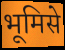
भूमिसे